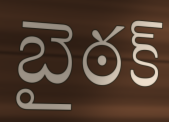
బైఠక్